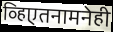
व्हिएतनामनेही